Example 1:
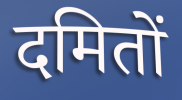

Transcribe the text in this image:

दमितों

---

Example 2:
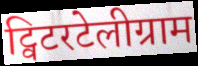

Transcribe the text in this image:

ट्विटरटेलीग्राम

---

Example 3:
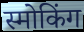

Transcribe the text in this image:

स्मोकिंग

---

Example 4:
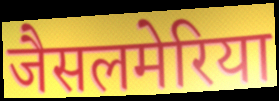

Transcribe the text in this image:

जैसलमेरिया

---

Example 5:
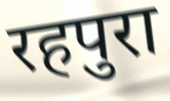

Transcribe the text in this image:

रहपुरा